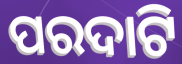
ପରଦାଟି